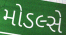
મોડલ્સે